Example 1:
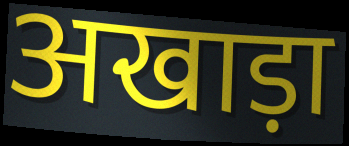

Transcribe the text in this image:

अखाड़ा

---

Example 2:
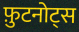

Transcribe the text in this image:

फ़ुटनोट्स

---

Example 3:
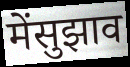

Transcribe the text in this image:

मेंसुझाव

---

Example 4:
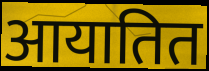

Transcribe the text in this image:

आयातित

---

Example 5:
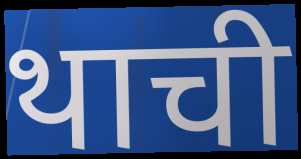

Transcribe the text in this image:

थाची